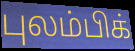
புலம்பிக்